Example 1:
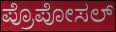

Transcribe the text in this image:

ಪ್ರೊಪೋಸಲ್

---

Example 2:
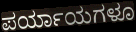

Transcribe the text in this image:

ಪರ್ಯಾಯಗಳೂ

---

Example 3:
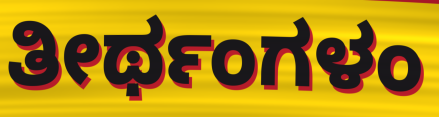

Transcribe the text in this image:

ತೀರ್ಥಂಗಳಂ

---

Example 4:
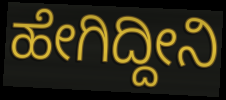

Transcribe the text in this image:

ಹೇಗಿದ್ದೀನಿ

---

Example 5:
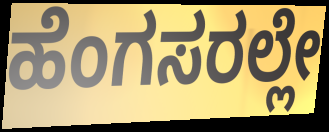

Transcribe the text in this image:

ಹೆಂಗಸರಲ್ಲೇ